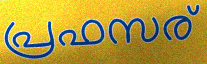
പ്രഫസര്